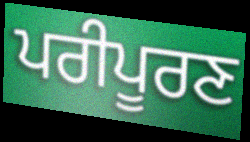
ਪਰੀਪੂਰਣ